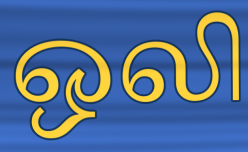
ஒலி